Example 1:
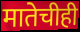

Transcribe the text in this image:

मातेचीही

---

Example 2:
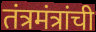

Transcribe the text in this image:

तंत्रमंत्रांची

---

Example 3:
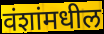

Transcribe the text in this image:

वंशांमधील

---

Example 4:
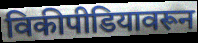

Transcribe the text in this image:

विकीपीडियावरून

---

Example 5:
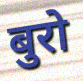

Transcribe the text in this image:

बुरो